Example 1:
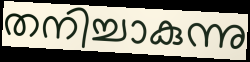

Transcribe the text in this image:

തനിച്ചാകുന്നു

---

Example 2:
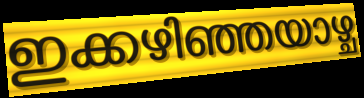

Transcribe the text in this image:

ഇക്കഴിഞ്ഞയാഴ്ച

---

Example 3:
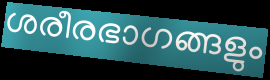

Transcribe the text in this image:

ശരീരഭാഗങ്ങളും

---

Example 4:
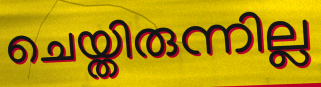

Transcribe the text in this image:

ചെയ്തിരുന്നില്ല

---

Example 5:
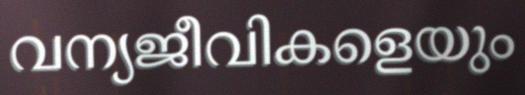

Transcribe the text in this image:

വന്യജീവികളെയും